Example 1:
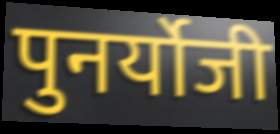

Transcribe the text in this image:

पुनर्योजी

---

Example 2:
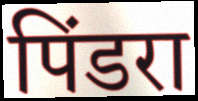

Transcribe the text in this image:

पिंडरा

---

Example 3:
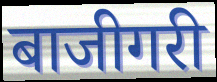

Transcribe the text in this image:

बाजीगरी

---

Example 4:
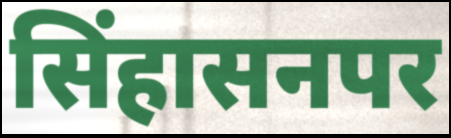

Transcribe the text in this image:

सिंहासनपर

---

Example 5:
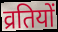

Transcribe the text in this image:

व्रतियों